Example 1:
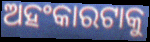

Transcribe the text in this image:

ଅହଂକାରଟାକୁ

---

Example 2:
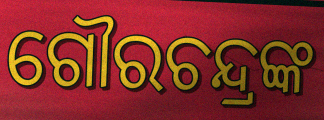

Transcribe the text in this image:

ଗୌରଚନ୍ଦ୍ରଙ୍କ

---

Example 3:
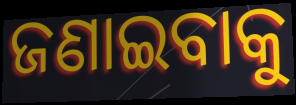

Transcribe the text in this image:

ଜଣାଇବାକୁ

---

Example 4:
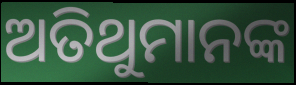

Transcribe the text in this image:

ଅତିଥୁମାନଙ୍କ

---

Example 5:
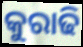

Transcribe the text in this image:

କୁରାଢି